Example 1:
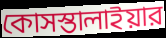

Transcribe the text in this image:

কোসস্তালাইয়ার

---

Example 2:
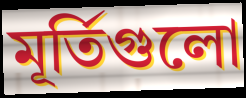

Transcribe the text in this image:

মূর্তিগুলো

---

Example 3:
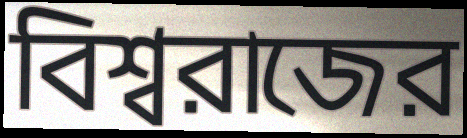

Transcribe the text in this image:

বিশ্বরাজের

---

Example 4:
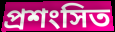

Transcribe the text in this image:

প্রশংসিত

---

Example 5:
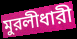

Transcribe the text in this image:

মুরলীধারী